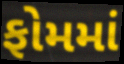
ફોમમાં